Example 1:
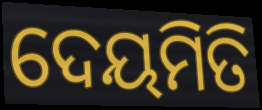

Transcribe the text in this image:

ଦେୟମିତି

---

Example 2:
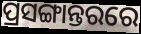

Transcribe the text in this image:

ପ୍ରସଙ୍ଗାନ୍ତରରେ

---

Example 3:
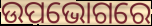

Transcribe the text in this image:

ଉପଭୋଗରେ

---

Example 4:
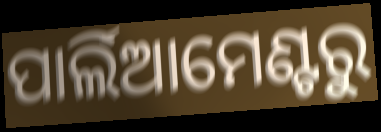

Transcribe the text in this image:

ପାର୍ଲିଆମେଣ୍ଟରୁ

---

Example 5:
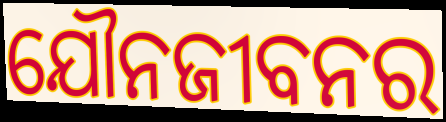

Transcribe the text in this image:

ଯୌନଜୀବନର